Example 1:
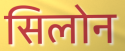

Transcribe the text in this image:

सिलोन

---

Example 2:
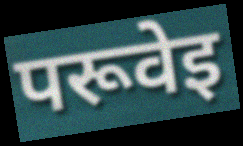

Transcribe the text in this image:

परूवेइ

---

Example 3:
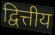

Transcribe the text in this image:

द्वित्तीय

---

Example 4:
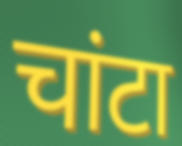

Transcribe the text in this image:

चांटा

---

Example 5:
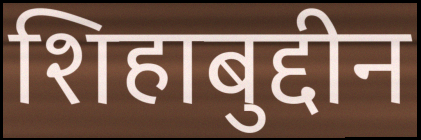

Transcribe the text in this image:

शिहाबुद्दीन